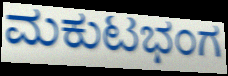
ಮಕುಟಭಂಗ